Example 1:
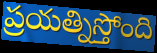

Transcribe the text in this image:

ప్రయత్నిస్తోంది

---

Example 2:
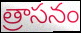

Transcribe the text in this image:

త్రాసనం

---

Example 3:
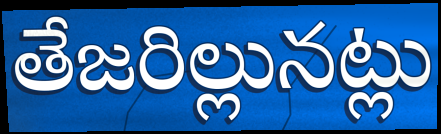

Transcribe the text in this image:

తేజరిల్లునట్లు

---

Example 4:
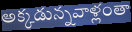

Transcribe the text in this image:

అక్కడున్నవాళ్లంతా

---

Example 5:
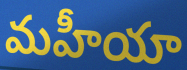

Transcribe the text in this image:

మహీయా